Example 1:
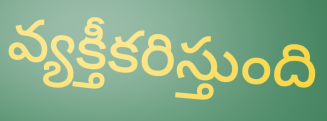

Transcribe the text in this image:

వ్యక్తీకరిస్తుంది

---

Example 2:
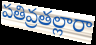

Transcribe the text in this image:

పతివ్రతల్లారా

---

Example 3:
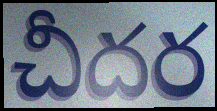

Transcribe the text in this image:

చీదర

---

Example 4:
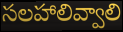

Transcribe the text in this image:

సలహాలివ్వాలి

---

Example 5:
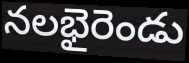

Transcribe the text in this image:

నలభైరెండు